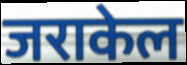
जराकेल